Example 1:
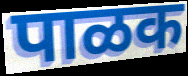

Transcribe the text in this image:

पाळक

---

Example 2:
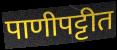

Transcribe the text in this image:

पाणीपट्टीत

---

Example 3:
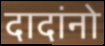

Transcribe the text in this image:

दादांनो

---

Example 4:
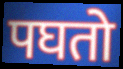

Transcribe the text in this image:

पघतो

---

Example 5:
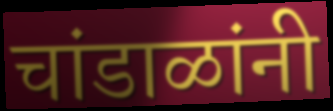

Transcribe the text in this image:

चांडाळांनी